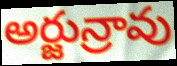
అర్జున్రావు